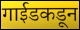
गाईडकडून